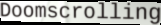
Doomscrolling